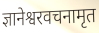
ज्ञानेश्वरवचनामृत